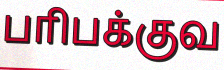
பரிபக்குவ